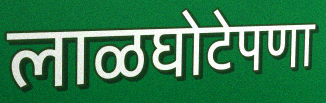
लाळघोटेपणा